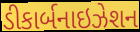
ડીકાર્બનાઇઝેશન